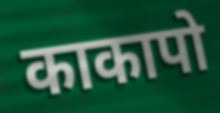
काकापो